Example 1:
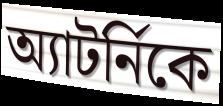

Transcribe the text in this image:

অ্যাটর্নিকে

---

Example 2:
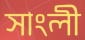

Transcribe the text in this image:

সাংলী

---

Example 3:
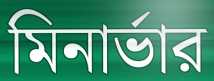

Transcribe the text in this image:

মিনার্ভার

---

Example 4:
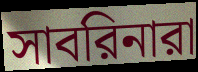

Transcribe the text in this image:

সাবরিনারা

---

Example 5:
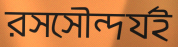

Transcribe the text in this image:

রসসৌন্দর্যই